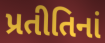
પ્રતીતિનાં